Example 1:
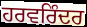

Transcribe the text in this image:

ਹਰਵਰਿੰਦਰ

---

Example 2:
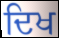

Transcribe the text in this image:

ਦਿਖ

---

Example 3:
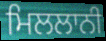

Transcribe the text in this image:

ਮਿਲਲਾਨੀ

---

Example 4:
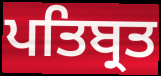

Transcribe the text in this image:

ਪਤਿਬ੍ਰਤ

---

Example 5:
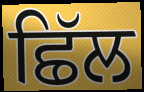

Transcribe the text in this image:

ਛਿੱਲ